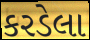
કરડેલા